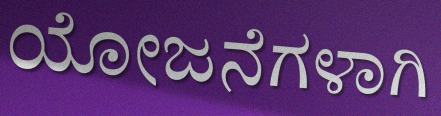
ಯೋಜನೆಗಳಾಗಿ